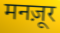
मनज़ूर